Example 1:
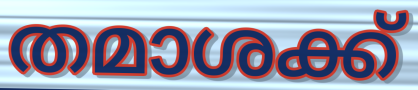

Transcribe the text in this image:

തമാശക്ക്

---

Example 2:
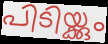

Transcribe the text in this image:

പിടിയ്ക്കും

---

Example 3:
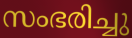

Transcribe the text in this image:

സംഭരിച്ചു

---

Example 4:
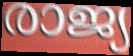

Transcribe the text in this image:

രാജ്യ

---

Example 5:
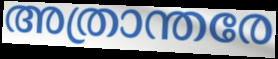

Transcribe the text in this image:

അത്രാന്തരേ